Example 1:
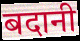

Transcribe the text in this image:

बदानी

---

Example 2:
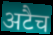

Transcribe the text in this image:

अटैच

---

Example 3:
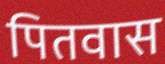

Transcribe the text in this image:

पितवास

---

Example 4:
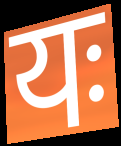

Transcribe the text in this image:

यः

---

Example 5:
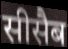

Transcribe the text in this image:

सीसैब